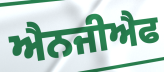
ਐਨਜੀਐਫ